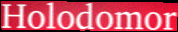
Holodomor